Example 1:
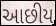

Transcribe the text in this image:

આછીય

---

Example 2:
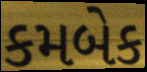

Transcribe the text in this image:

કમબેક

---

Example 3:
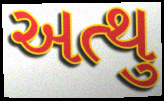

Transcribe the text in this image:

અત્થુ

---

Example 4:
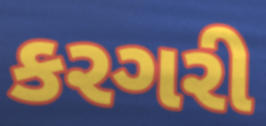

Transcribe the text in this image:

કરગરી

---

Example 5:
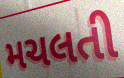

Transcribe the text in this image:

મચલતી